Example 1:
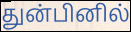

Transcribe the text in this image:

துன்பினில்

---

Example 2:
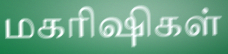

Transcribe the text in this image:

மகரிஷிகள்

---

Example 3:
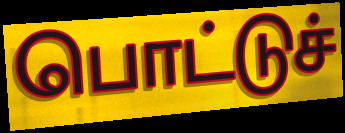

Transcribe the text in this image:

பொட்டுச்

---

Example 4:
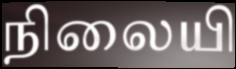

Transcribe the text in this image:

நிலையி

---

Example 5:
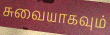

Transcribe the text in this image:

சுவையாகவும்